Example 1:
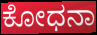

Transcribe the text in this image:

ಕೋಧನಾ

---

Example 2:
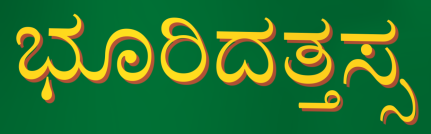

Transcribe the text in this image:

ಭೂರಿದತ್ತಸ್ಸ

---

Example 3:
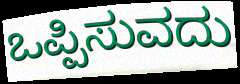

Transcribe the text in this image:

ಒಪ್ಪಿಸುವದು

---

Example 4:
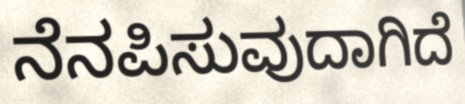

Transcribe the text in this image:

ನೆನಪಿಸುವುದಾಗಿದೆ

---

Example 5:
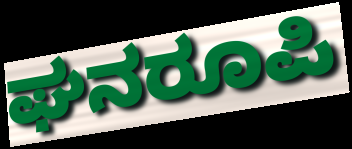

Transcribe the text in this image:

ಘನರೂಪಿ